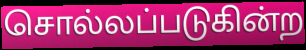
சொல்லப்படுகின்ற